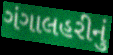
ગંગાલહરીનું